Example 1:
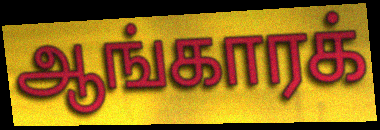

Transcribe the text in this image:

ஆங்காரக்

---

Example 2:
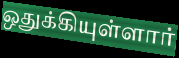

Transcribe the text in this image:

ஒதுக்கியுள்ளார்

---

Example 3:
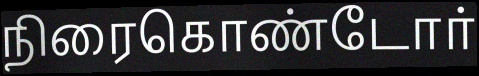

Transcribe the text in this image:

நிரைகொண்டோர்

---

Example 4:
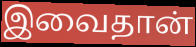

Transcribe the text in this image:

இவைதான்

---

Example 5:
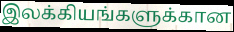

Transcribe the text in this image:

இலக்கியங்களுக்கான